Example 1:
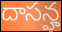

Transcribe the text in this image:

దాసన్హ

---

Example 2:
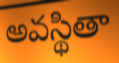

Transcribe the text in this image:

అవస్థితా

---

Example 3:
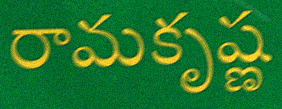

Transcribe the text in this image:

రామకృష్ణ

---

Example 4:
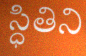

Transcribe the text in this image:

స్ధితిని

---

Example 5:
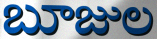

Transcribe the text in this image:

బూజుల